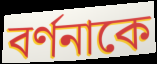
বর্ণনাকে